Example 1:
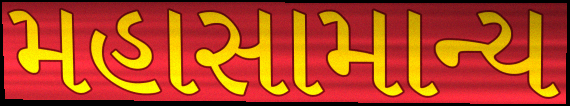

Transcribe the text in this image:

મહાસામાન્ય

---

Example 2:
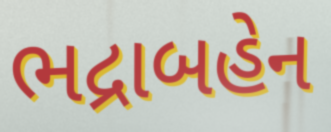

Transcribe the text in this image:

ભદ્રાબહેન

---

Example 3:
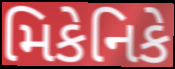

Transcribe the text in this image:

મિકેનિકે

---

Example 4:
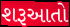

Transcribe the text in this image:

શરૂઆતો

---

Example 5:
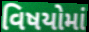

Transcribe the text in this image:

વિષયોમાં